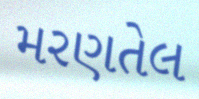
મરણતેલ